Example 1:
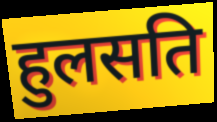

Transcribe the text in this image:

हुलसति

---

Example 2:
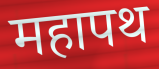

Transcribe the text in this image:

महापथ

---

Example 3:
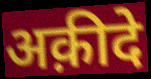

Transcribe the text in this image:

अक़ीदे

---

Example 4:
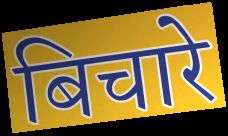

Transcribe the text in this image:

बिचारे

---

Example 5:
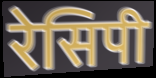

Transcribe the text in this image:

रेसिपी